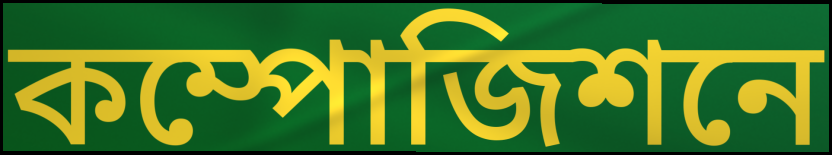
কম্পোজিশনে